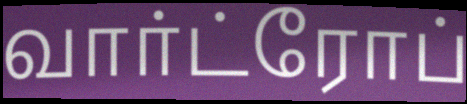
வார்ட்ரோப்